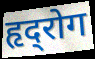
हृद्‍रोग